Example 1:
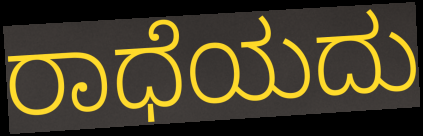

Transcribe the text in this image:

ರಾಧೆಯದು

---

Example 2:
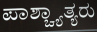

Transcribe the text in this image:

ಪಾಶ್ಚ್ಯಾತ್ಯರು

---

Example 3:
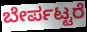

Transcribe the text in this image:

ಬೇರ್ಪಟ್ಟರೆ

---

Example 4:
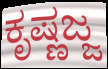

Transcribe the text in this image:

ಕೃಷ್ಣಜ್ಜ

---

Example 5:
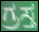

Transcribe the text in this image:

ಗ್ರಸ್ತ